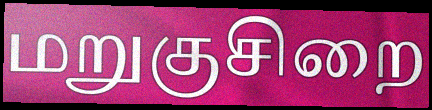
மறுகுசிறை